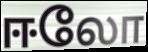
ஈலோ